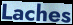
Laches